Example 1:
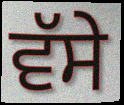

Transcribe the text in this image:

ਵੱਸੇ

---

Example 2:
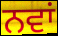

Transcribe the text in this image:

ਨਵਾਂ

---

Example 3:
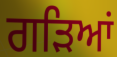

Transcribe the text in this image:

ਗੜਿਆਂ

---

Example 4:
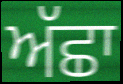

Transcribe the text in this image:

ਅੱਛਾ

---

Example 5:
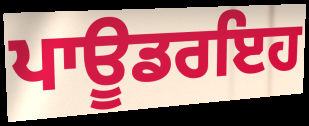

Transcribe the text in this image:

ਪਾਊਡਰਇਹ